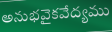
అనుభవైకవేద్యము